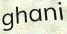
ghani